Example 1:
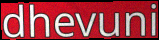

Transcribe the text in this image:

dhevuni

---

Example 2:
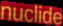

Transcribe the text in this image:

nuclide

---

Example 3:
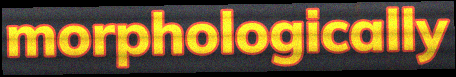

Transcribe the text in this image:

morphologically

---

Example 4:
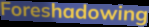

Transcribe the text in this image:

Foreshadowing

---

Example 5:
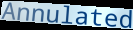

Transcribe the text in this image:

Annulated